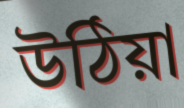
উঠিয়া